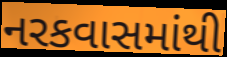
નરકવાસમાંથી